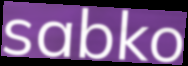
sabko